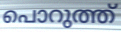
പൊറുത്ത്